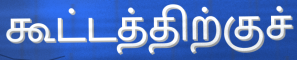
கூட்டத்திற்குச்